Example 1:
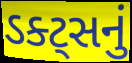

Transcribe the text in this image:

ડક્ટ્સનું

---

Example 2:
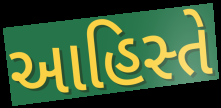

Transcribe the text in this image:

આહિસ્તે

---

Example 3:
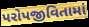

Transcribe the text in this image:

પરોપજીવિતામાં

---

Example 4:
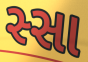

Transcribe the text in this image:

સ્સા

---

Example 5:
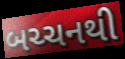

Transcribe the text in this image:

બચ્ચનથી